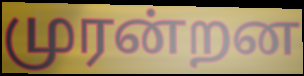
முரன்றன